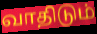
வாதிடும்